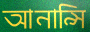
আনান্সি